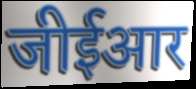
जीईआर